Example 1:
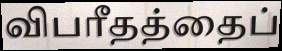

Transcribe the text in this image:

விபரீதத்தைப்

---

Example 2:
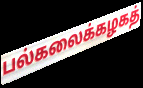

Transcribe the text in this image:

பல்கலைக்கழகத்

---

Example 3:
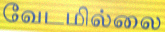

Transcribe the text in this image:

வேடமில்லை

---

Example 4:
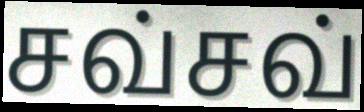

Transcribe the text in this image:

சவ்சவ்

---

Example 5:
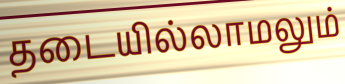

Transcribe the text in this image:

தடையில்லாமலும்